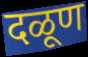
दळूण